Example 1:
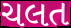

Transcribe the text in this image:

ચલત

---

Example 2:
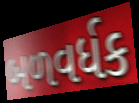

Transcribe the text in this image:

બળવર્ધક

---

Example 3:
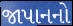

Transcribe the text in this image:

જાપાનનો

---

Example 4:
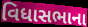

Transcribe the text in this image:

વિધાસભાના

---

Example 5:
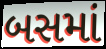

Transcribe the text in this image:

બસમાં